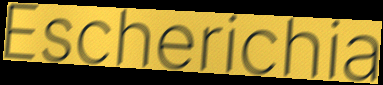
Escherichia